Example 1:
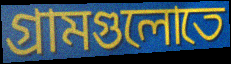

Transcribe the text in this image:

গ্রামগুলোতে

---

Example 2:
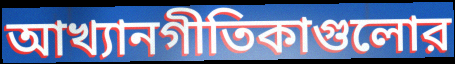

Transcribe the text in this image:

আখ্যানগীতিকাগুলোর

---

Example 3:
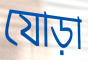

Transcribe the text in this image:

যোড়া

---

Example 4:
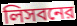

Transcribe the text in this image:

লিসবনের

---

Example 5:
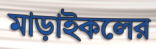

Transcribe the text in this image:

মাড়াইকলের